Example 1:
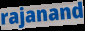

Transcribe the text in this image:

rajanand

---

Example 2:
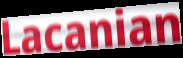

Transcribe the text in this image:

Lacanian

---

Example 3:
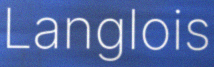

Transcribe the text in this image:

Langlois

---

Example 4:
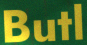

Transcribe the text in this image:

Butl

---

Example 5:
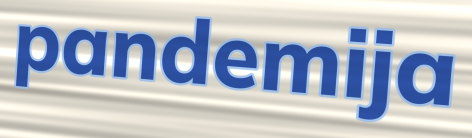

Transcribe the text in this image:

pandemija